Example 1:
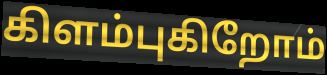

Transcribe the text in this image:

கிளம்புகிறோம்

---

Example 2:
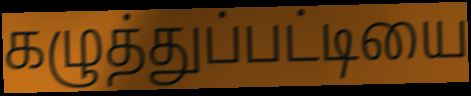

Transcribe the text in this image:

கழுத்துப்பட்டியை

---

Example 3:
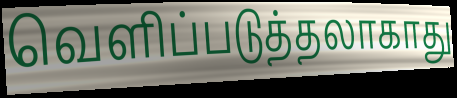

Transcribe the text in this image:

வெளிப்படுத்தலாகாது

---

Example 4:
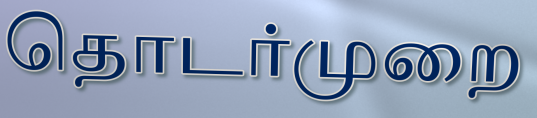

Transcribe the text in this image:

தொடர்முறை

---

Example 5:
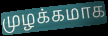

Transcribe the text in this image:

முழக்கமாக